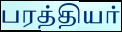
பரத்தியர்